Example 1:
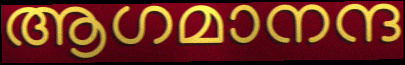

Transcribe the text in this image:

ആഗമാനന്ദ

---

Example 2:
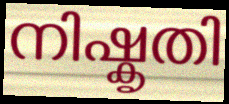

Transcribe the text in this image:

നിഷ്കൃതി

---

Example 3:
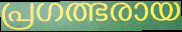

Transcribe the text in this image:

പ്രഗത്ഭരായ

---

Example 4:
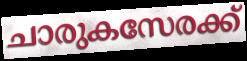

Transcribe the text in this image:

ചാരുകസേരക്ക്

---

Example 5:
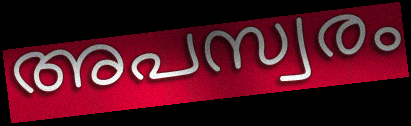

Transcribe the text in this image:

അപസ്വരം